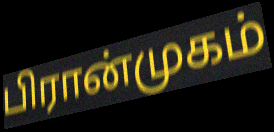
பிரான்முகம்